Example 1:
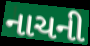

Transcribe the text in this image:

નાચની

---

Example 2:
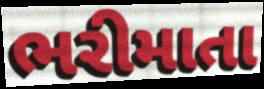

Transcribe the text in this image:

ભરીમાતા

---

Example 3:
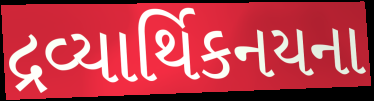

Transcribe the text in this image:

દ્રવ્યાર્થિકનયના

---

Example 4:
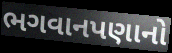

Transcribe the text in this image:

ભગવાનપણાનો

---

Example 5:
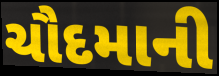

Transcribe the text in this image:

ચૌદમાની